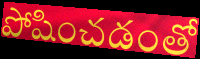
పోషించడంతో